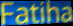
Fatiha